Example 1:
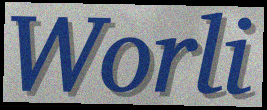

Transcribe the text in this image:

Worli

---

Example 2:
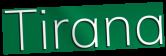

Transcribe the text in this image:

Tirana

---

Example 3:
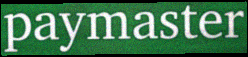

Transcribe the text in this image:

paymaster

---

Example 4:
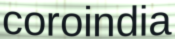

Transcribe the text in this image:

coroindia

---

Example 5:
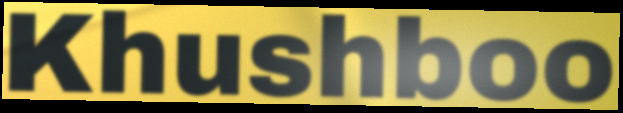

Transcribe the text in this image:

Khushboo